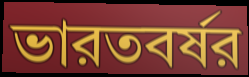
ভারতবর্ষর